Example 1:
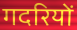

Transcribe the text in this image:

गदरियों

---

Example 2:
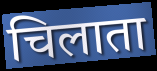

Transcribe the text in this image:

चिलाता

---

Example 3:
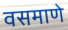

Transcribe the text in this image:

वसमाणे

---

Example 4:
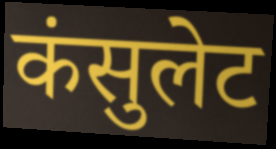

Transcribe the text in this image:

कंसुलेट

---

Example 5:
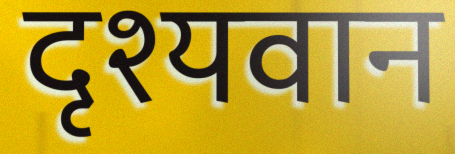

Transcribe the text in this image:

दृश्यवान